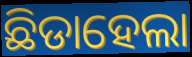
ଛିଡାହେଲା